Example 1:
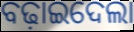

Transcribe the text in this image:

ବଢ଼ାଇଦେଲା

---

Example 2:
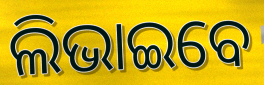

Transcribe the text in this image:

ଲିଭାଇବେ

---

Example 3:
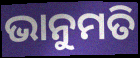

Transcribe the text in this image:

ଭାନୁମତି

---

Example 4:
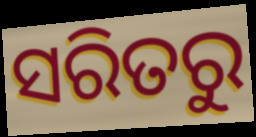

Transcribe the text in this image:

ସରିତରୁ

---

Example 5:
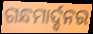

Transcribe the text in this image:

ଗନ୍ଧମାର୍ଦ୍ଦନର